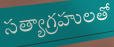
సత్యాగ్రహులతో